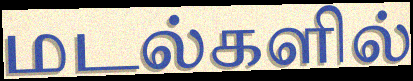
மடல்களில்